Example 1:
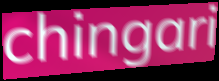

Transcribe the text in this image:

chingari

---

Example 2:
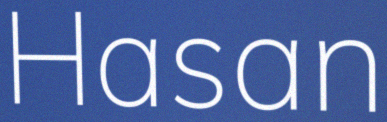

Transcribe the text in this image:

Hasan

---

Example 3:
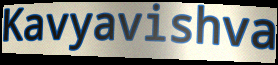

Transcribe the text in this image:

Kavyavishva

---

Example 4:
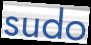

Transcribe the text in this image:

sudo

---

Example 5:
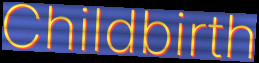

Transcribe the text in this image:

Childbirth